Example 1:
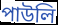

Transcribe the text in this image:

পাউলি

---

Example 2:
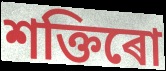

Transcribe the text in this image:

শক্তিৰো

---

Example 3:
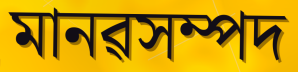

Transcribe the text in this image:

মানৱসম্পদ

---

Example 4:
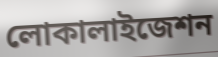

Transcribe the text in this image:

লোকালাইজেশন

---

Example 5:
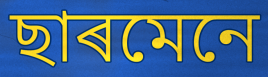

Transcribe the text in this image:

ছাৰমেনে